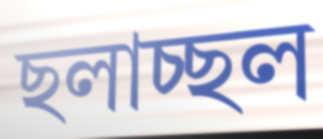
ছলাচ্ছল